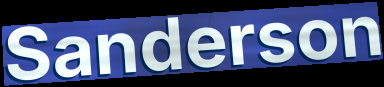
Sanderson